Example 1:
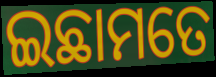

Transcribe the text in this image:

ଇଛାମତେ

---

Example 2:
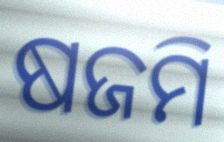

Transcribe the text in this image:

ଷଜମି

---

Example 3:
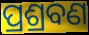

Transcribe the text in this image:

ପ୍ରଶ୍ରବଣ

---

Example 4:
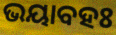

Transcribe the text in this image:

ଭୟାବହଃ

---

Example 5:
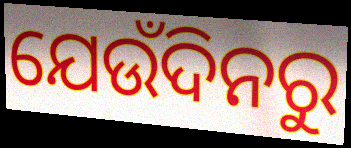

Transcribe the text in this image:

ଯେଉଁଦିନରୁ